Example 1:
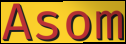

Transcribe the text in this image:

Asom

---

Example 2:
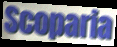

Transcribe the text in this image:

Scoparia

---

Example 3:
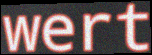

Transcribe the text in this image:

wert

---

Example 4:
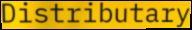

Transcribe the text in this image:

Distributary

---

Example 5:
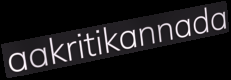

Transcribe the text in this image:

aakritikannada